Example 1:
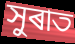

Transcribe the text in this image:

সুৰাত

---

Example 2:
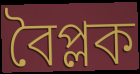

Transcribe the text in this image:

বৈপ্লক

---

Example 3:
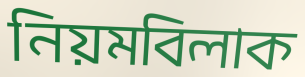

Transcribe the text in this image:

নিয়মবিলাক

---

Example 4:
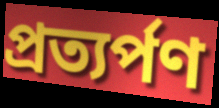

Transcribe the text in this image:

প্ৰত্যৰ্পণ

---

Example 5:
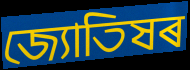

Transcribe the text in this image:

জ্যোতিষৰ